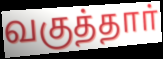
வகுத்தார்